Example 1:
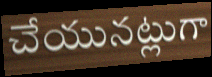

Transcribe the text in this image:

చేయునట్లుగా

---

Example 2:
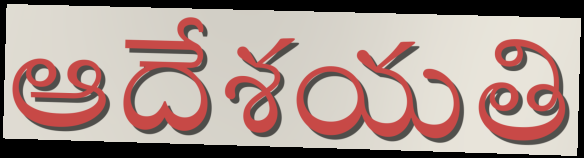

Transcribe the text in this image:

ఆదేశయతి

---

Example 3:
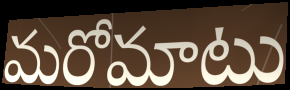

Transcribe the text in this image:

మరోమాటు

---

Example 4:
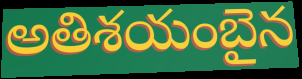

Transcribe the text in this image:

అతిశయంబైన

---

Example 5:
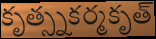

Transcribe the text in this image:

కృత్స్నకర్మకృత్